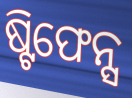
ଷ୍ଟିଫେନ୍ସ